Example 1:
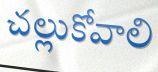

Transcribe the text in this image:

చల్లుకోవాలి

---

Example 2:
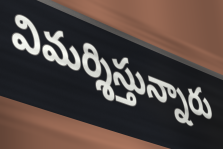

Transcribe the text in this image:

విమర్శిస్తున్నారు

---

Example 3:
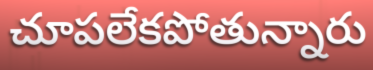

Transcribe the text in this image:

చూపలేకపోతున్నారు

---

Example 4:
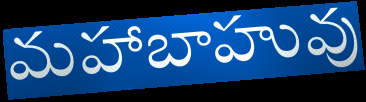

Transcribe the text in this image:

మహాబాహువు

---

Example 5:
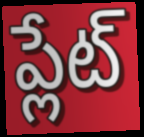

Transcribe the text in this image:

ప్లేట్